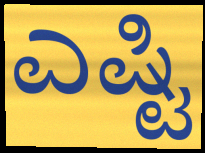
ಎಷ್ಟಿ